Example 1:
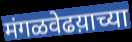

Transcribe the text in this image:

मंगळवेढय़ाच्या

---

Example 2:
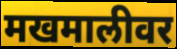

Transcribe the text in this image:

मखमालीवर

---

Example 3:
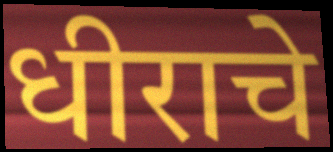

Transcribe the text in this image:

धीराचे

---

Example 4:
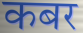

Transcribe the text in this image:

कबर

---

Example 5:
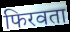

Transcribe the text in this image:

फिरवता